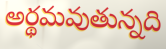
అర్థమవుతున్నది